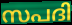
സപദി